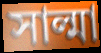
সাল্মা